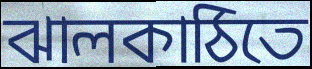
ঝালকাঠিতে